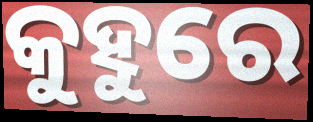
କୁହୁରେ